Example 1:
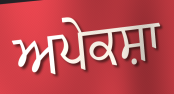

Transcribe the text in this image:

ਅਪੇਕਸ਼ਾ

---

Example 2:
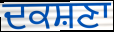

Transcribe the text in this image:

ਦਕਸ਼ਣਾ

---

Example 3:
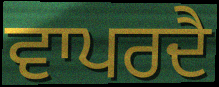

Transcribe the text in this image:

ਵਾਪਰਦੈ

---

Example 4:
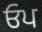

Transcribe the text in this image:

ਓਪ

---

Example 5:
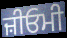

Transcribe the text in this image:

ਜ਼ੀਓਮੀ